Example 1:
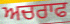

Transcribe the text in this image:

ਅਚਰਾਫ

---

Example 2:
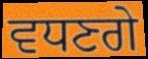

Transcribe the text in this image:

ਵਧਣਗੇ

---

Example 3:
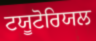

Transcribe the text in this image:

ਟਯੂਟੋਰਿਯਲ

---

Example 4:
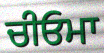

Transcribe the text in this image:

ਚੀਓਮਾ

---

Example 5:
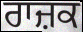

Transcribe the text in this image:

ਰਾਜ਼ਕ